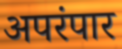
अपरंपार